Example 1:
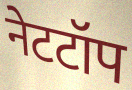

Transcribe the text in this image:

नेटटॉप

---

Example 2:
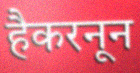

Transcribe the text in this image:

हैकरनून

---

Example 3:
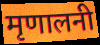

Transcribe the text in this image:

मृणालनी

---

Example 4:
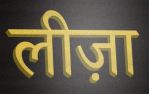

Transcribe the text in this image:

लीज़ा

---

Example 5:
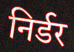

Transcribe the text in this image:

निर्डर